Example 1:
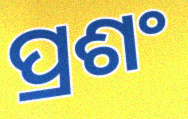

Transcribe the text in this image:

ପ୍ରଶଂ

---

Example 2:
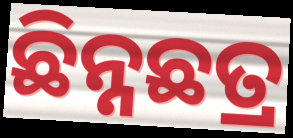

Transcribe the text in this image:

ଛିନ୍ନଛତ୍ର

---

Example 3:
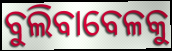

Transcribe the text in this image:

ବୁଲିବାବେଳକୁ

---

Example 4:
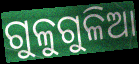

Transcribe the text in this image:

ଗୁଳୁଗୁଳିଆ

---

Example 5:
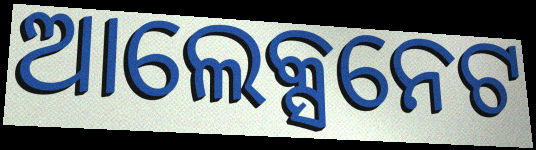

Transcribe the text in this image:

ଆଲେକ୍ସନେଟ